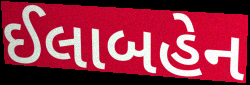
ઈલાબહેન